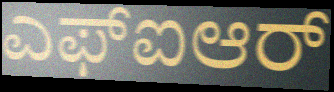
ಎಫ್ಐಆರ್